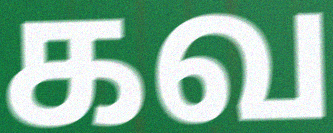
கவ